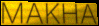
MAKHA